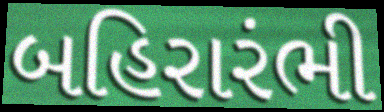
બહિરારંભી